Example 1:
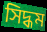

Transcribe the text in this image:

সিদ্ধম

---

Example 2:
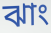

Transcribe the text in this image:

ঝাং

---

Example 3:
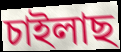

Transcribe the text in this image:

চাইলাছ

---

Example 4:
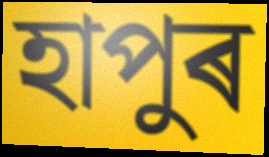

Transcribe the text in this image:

হাপুৰ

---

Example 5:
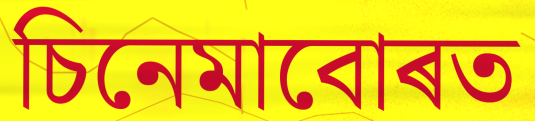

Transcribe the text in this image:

চিনেমাবোৰত